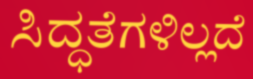
ಸಿದ್ಧತೆಗಳಿಲ್ಲದೆ